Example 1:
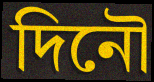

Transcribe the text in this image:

দিনৌ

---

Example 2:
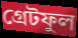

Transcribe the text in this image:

গ্ৰেটফুল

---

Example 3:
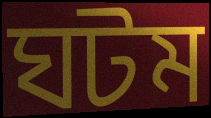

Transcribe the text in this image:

ঘটম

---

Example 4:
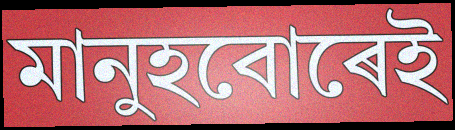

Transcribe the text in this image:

মানুহবোৰেই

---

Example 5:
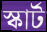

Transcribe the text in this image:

স্কাৰ্ট